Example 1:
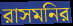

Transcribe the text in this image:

রাসমনির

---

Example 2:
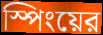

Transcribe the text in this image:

স্পিংয়ের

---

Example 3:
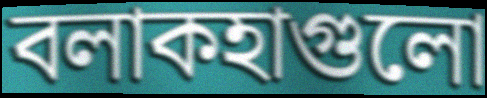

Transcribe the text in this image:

বলাকহাগুলো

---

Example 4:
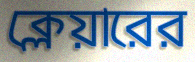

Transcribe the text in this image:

ক্লেয়ারের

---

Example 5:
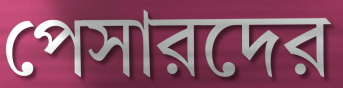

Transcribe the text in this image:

পেসারদের